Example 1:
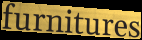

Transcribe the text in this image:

furnitures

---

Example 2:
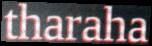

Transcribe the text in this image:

tharaha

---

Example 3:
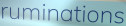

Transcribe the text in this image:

ruminations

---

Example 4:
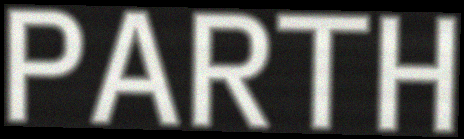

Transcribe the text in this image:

PARTH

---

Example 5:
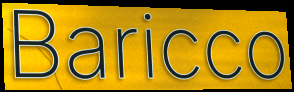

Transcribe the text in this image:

Baricco